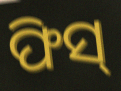
ଫିସ୍